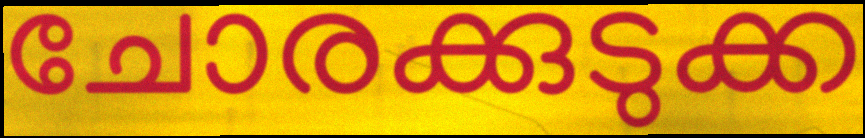
ചോരക്കുടുക്ക